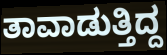
ತಾವಾಡುತ್ತಿದ್ದ